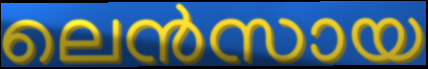
ലെൻസായ